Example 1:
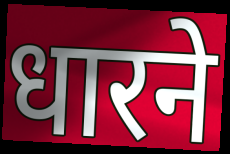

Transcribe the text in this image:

धारने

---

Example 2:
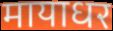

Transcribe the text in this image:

मायाधर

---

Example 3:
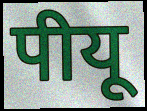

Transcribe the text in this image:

पीयू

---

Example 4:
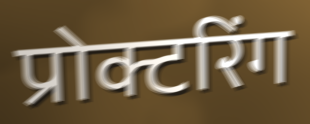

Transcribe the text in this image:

प्रोक्टरिंग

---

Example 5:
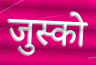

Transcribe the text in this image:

जुस्को